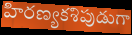
హిరణ్యకశిపుడుగా